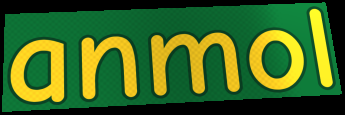
anmol